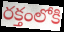
రక్తంలోకి